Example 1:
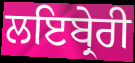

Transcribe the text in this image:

ਲਇਬ੍ਰੇਰੀ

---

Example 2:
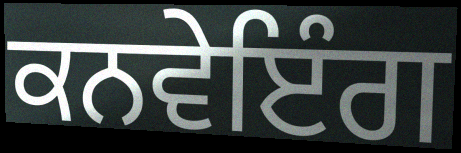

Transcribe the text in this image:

ਕਨਵੇਇੰਗ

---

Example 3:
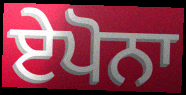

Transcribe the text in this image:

ਏਪੋਨਾ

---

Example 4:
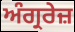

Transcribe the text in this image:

ਅੰਗ੍ਰਰੇਜ਼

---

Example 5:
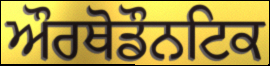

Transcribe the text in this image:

ਔਰਥੋਡੌਨਟਿਕ